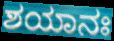
ಶಯಾನಃ